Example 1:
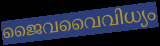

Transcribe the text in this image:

ജൈവവൈവിധ്യം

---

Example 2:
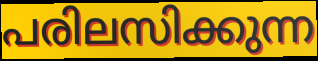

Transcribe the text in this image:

പരിലസിക്കുന്ന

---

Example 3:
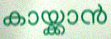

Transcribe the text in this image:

കായ്ക്കാൻ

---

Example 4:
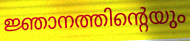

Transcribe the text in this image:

ജ്ഞാനത്തിന്റെയും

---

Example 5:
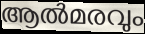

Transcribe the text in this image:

ആൽമരവും